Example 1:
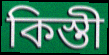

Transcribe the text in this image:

কিস্তী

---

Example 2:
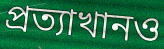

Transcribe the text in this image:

প্রত্যাখানও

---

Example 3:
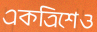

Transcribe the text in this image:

একত্রিশেও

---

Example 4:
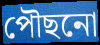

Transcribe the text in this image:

পৌছনো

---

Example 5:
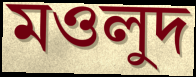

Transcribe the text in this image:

মওলুদ